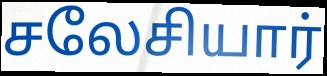
சலேசியார்